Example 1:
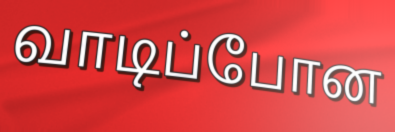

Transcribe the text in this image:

வாடிப்போன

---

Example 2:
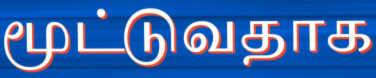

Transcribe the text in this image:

மூட்டுவதாக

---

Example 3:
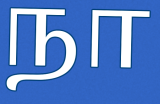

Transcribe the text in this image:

நா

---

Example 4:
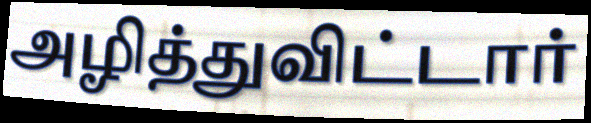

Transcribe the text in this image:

அழித்துவிட்டார்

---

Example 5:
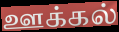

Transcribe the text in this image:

ஊக்கல்